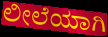
ಲೀಲೆಯಾಗಿ